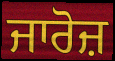
ਜਾਰੋਜ਼